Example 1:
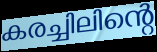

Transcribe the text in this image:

കരച്ചിലിന്റെ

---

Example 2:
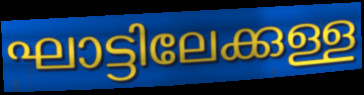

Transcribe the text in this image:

ഘാട്ടിലേക്കുള്ള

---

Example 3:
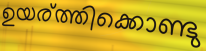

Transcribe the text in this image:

ഉയര്ത്തിക്കൊണ്ടു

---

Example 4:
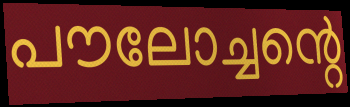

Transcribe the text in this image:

പൗലോച്ചന്റെ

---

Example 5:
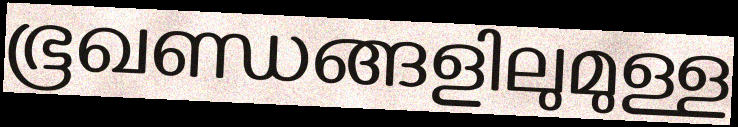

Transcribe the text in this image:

ഭൂഖണ്ഡങ്ങളിലുമുള്ള